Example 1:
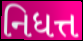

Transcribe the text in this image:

નિધત્ત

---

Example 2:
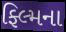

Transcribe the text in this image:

ફ્લ્મિના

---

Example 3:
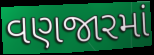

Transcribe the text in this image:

વણજારમાં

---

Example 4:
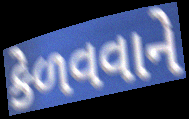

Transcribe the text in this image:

કેળવવાને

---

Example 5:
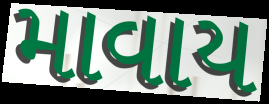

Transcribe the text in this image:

માવાય